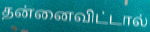
தன்னைவிட்டால்